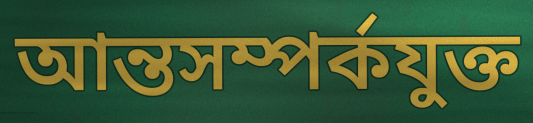
আন্তসম্পর্কযুক্ত